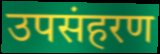
उपसंहरण